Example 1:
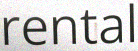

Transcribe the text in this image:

rental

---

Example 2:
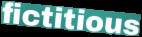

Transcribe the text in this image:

fictitious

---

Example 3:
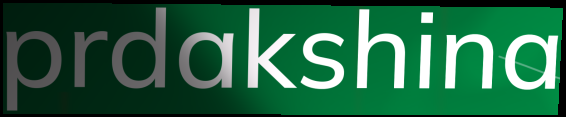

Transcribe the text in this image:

prdakshina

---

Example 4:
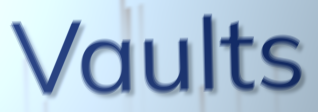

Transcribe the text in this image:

Vaults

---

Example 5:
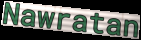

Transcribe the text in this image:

Nawratan